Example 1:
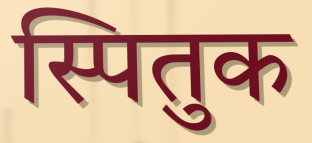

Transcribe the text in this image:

स्पितुक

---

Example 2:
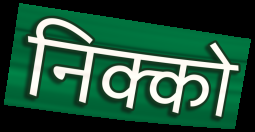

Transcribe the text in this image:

निक्को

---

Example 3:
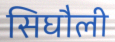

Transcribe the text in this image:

सिघौली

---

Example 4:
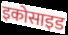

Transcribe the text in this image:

इकोसाइड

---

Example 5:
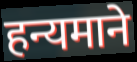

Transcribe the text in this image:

हन्यमाने